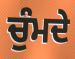
ਚੁੰਮਦੇ